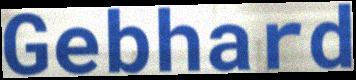
Gebhard